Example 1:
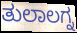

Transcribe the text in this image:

ತುಲಾಲಗ್ನ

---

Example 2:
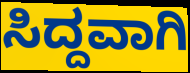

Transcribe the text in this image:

ಸಿದ್ದವಾಗಿ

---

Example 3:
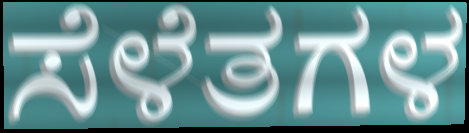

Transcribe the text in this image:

ಸೆಳೆತಗಳ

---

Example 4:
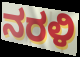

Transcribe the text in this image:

ನರಳಿ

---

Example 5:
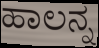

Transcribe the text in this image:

ಹಾಲನ್ನ